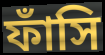
ফাঁসি